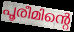
പൂരീമിന്റെ